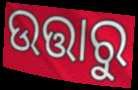
ଉତ୍ତାରୁ